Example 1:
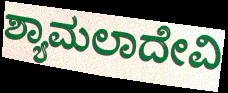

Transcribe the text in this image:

ಶ್ಯಾಮಲಾದೇವಿ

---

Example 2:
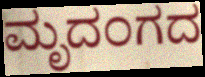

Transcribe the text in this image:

ಮೃದಂಗದ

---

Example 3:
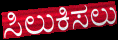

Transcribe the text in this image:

ಸಿಲುಕಿಸಲು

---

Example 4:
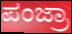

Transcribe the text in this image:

ಪಂಜ್ರಾ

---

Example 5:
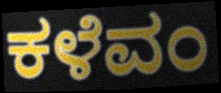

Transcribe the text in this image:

ಕಳೆವಂ